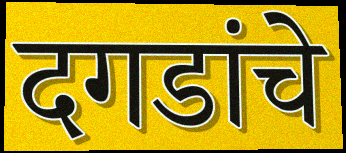
दगडांचे